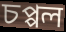
চপ্পল